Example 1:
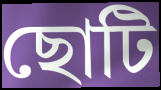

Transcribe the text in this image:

ছোটি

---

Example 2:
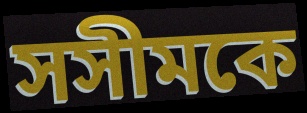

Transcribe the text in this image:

সসীমকে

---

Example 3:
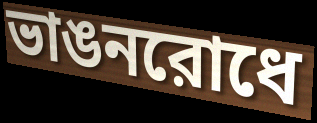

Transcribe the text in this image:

ভাঙনরোধে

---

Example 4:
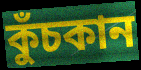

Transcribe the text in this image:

কুঁচকান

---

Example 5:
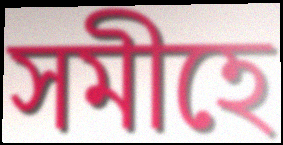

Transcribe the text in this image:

সমীহে